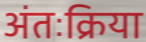
अंतःक्रिया